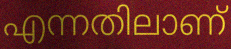
എന്നതിലാണ്